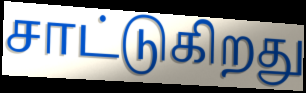
சாட்டுகிறது